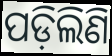
ପଡ଼ିଲିଣି